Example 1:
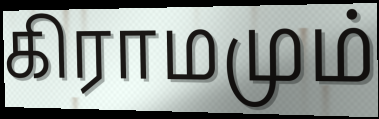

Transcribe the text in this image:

கிராமமும்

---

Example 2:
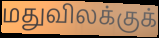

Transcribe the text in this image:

மதுவிலக்குக்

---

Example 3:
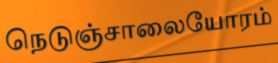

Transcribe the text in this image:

நெடுஞ்சாலையோரம்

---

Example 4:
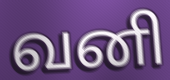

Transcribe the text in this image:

வனி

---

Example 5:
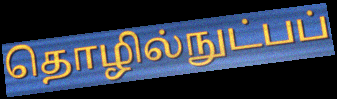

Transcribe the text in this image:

தொழில்நுட்பப்